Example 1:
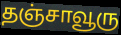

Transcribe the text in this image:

தஞ்சாவூரு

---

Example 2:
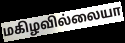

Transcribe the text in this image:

மகிழவில்லையா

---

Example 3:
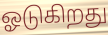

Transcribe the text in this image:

ஓடுகிறது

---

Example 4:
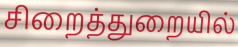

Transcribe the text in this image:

சிறைத்துறையில்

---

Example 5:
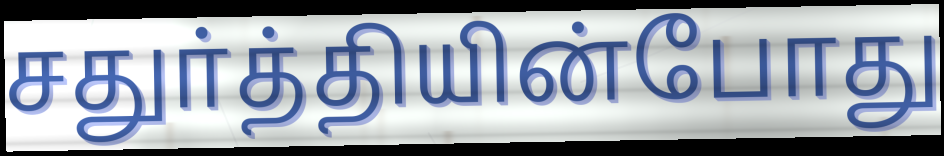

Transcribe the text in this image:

சதுர்த்தியின்போது